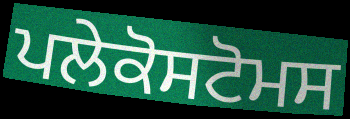
ਪਲੇਕੋਸਟੋਮਸ